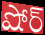
షోర్